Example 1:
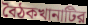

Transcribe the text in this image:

বৈঠকখানাটির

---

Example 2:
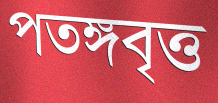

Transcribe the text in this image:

পতঙ্গবৃত্ত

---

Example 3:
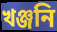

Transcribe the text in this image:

খঞ্জনি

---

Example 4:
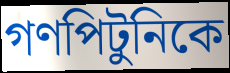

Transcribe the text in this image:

গণপিটুনিকে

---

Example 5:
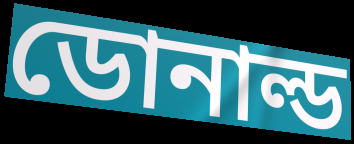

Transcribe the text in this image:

ডোনাল্ড